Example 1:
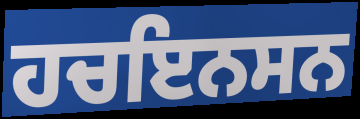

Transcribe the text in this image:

ਹਚਇਨਸਨ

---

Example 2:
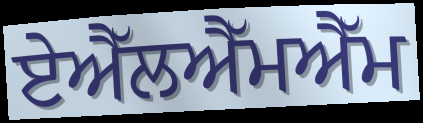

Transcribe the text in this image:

ਏਐੱਲਐੱਮਐੱਮ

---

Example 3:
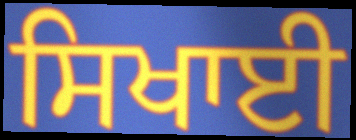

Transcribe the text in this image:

ਸਿਖਾਈ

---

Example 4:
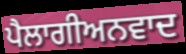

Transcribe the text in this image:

ਪੈਲਾਗੀਅਨਵਾਦ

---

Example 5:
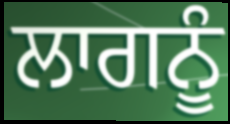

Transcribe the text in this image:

ਲਾਗਨੂੰ